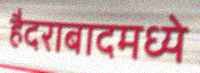
हैदराबादमध्ये